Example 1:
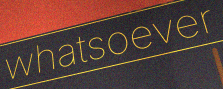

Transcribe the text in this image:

whatsoever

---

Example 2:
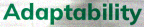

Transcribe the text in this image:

Adaptability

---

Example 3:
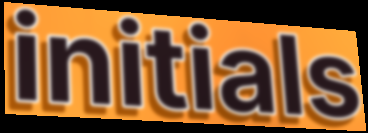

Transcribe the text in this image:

initials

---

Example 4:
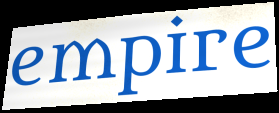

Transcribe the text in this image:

empire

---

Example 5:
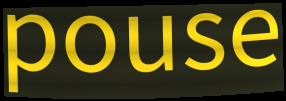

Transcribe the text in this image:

pouse